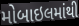
મોબાઇલમાંથી